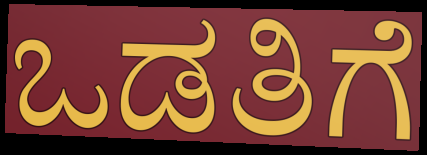
ಒಡತಿಗೆ